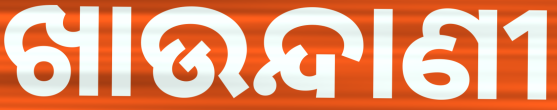
ଖାଉନ୍ଦାଣୀ